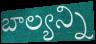
బాల్యన్ని